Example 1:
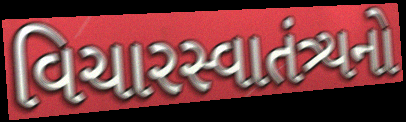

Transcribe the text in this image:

વિચારસ્વાતંત્ર્યનો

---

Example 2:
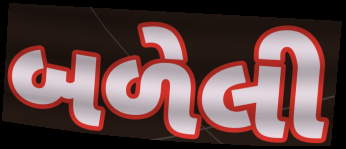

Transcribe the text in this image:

બળેલી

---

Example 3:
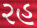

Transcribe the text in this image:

રહ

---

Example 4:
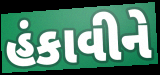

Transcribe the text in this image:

હંકાવીને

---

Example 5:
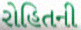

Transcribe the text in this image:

રોહિતની